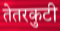
तेतरकुटी